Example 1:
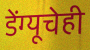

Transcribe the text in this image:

डेंग्यूचेही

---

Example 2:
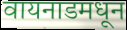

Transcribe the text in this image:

वायनाडमधून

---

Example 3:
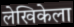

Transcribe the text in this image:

लेखिकेला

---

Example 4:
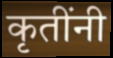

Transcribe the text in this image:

कृतींनी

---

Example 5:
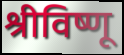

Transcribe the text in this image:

श्रीविष्णू